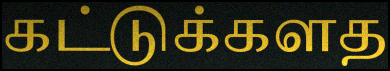
கட்டுக்களத